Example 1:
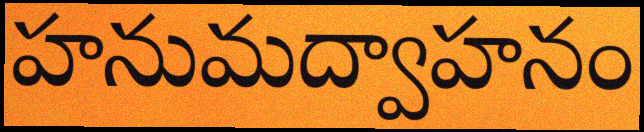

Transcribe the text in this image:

హనుమద్వాహనం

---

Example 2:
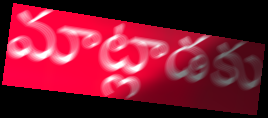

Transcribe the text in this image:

మాట్లాడకు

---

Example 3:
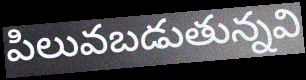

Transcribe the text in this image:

పిలువబడుతున్నవి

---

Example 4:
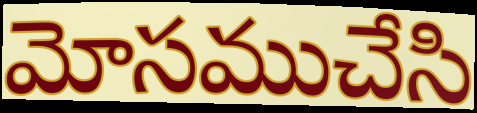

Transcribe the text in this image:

మోసముచేసి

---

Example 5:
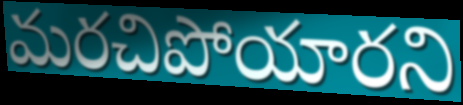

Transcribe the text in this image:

మరచిపోయారని